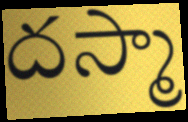
దస్మా